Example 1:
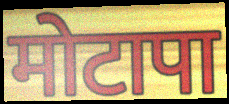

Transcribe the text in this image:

मोटापा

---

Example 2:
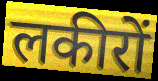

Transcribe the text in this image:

लकीरों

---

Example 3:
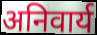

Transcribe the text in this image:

अनिवार्य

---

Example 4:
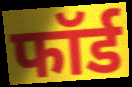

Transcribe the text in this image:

फॉर्ड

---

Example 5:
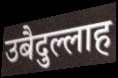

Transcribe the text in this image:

उबैदुल्लाह